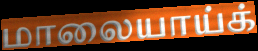
மாலையாய்க்